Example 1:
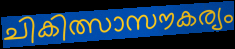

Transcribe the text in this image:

ചികിത്സാസൗകര്യം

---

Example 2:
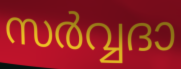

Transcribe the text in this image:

സർവ്വദാ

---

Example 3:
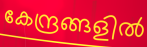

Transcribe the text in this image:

കേന്ദ്രങ്ങളിൽ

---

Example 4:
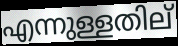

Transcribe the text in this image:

എന്നുള്ളതില്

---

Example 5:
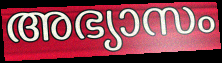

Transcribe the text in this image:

അഭ്യാസം